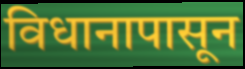
विधानापासून